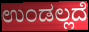
ಉಂಡಲ್ಲದೆ